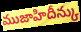
ముజాహిదీన్కు